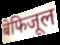
बेफिजूल